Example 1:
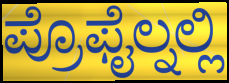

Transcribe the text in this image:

ಪ್ರೊಫೈಲ್ನಲ್ಲಿ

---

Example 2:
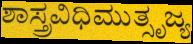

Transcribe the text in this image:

ಶಾಸ್ತ್ರವಿಧಿಮುತ್ಸೃಜ್ಯ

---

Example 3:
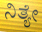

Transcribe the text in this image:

ನಿತ್ಯೇ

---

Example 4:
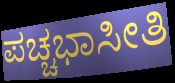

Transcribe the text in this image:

ಪಚ್ಚಭಾಸೀತಿ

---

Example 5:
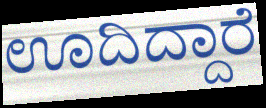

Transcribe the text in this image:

ಊದಿದ್ದಾರೆ